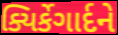
ક્યિર્કેગાર્દને